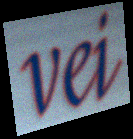
vei